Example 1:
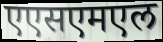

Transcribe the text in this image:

एएसएमएल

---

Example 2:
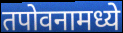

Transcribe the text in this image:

तपोवनामध्ये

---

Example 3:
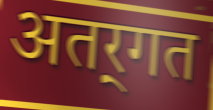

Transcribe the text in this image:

अतर्गत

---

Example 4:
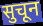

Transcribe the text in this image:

सुचून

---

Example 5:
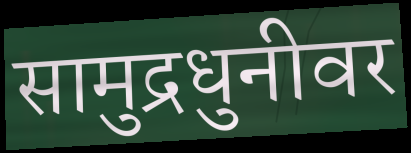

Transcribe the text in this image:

सामुद्रधुनीवर